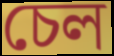
চেল